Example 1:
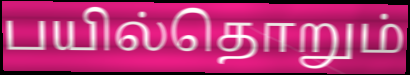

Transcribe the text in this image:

பயில்தொறும்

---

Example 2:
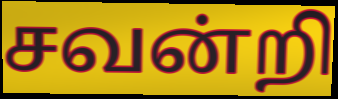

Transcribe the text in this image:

சவன்றி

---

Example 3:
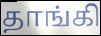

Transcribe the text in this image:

தாங்கி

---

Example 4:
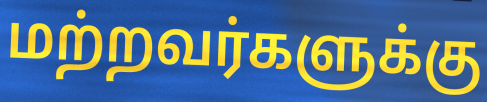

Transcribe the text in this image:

மற்றவர்களுக்கு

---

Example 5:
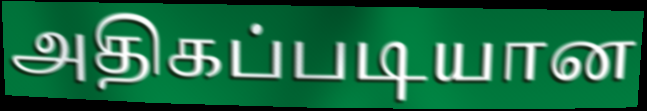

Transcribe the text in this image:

அதிகப்படியான